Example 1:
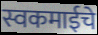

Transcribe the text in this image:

स्वकमाईचे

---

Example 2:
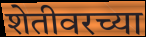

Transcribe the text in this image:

शेतीवरच्या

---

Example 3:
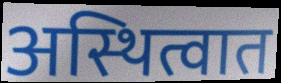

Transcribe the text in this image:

अस्थित्वात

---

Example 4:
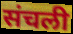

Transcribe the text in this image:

संचली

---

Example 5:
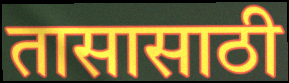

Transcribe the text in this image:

तासासाठी